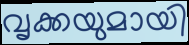
വൃക്കയുമായി